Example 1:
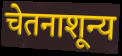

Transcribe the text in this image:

चेतनाशून्य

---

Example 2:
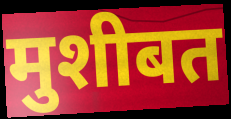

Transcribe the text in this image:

मुशीबत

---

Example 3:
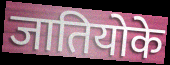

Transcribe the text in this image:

जातियोके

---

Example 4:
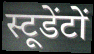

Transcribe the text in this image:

स्टूडेंटों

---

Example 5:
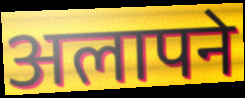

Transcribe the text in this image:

अलापने